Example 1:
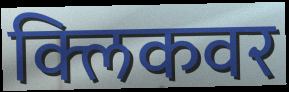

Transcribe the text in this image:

क्लिकवर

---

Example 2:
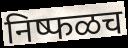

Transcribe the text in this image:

निष्फळच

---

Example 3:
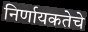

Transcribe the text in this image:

निर्णायकतेचे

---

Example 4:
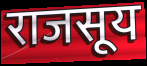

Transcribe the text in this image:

राजसूय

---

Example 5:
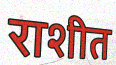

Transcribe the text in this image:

राशीत